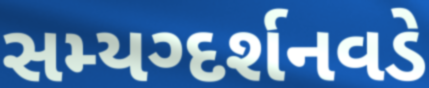
સમ્યગ્દર્શનવડે